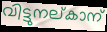
വിട്ടുനല്കാന്